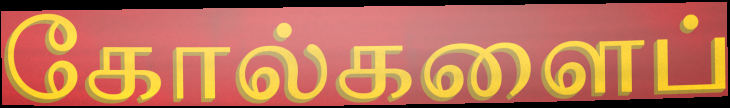
கோல்களைப்